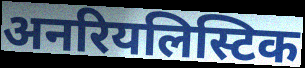
अनरियलिस्टिक